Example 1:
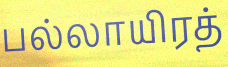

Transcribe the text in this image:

பல்லாயிரத்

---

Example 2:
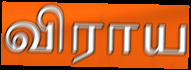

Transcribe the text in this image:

விராய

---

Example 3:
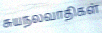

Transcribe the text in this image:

சுயநலவாதிகள்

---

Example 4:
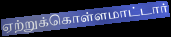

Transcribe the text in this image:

ஏற்றுக்கொள்ளமாட்டார்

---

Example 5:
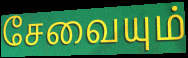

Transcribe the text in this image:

சேவையும்